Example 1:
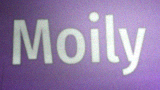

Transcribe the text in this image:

Moily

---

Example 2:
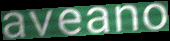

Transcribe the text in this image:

aveano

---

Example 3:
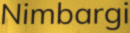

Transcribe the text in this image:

Nimbargi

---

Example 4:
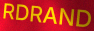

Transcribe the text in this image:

RDRAND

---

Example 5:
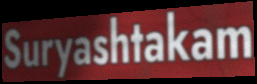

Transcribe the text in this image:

Suryashtakam